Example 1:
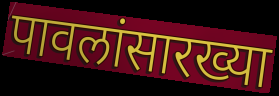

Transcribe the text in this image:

पावलांसारख्या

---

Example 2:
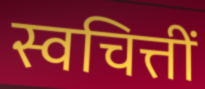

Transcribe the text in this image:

स्वचित्तीं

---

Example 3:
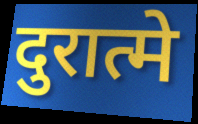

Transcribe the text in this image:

दुरात्मे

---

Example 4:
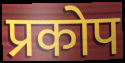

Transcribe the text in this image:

प्रकोप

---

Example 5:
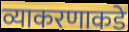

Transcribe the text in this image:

व्याकरणाकडे